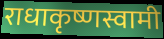
राधाकृष्णस्वामी